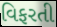
વિફરતી